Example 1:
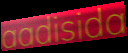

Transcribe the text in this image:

aadisida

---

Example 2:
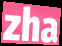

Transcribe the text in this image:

zha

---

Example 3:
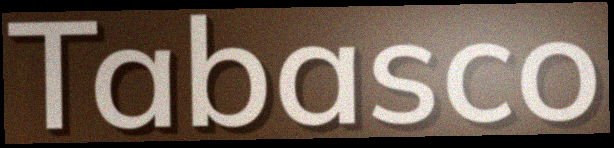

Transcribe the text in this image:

Tabasco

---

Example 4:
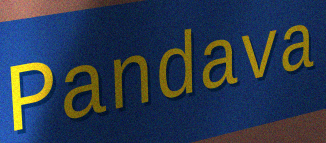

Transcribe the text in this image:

Pandava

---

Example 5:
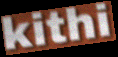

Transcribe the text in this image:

kithi